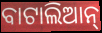
ବାଟାଲିଆନ୍